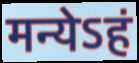
मन्येऽहं